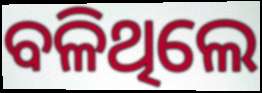
ବଳିଥିଲେ